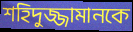
শহিদুজ্জামানকে